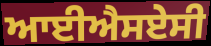
ਆਈਐਸਏਸੀ